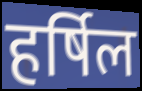
हर्षिल